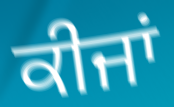
ਕੀਜਾਂ